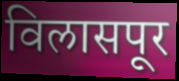
विलासपूर